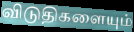
விடுதிகளையும்